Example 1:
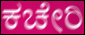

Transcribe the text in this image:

ಕಚೇರಿ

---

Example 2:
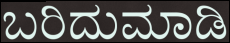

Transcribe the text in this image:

ಬರಿದುಮಾಡಿ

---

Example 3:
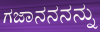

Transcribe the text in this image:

ಗಜಾನನನನ್ನು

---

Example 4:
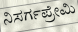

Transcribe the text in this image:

ನಿಸರ್ಗಪ್ರೇಮಿ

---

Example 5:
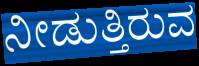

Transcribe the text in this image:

ನೀಡುತ್ತಿರುವ